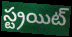
స్ట్రయిట్